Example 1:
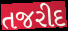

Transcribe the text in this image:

તજરીદ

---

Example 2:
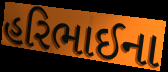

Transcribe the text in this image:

હરિભાઈના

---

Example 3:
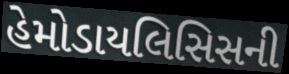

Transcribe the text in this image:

હેમોડાયલિસિસની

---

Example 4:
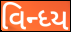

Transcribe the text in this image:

વિન્ધ્ય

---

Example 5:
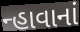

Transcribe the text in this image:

ન્હાવાનાં